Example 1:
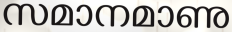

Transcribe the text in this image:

സമാനമാണു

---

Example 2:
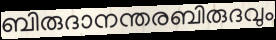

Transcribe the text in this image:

ബിരുദാനന്തരബിരുദവും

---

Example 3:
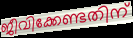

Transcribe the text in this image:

ജീവിക്കേണ്ടതിന്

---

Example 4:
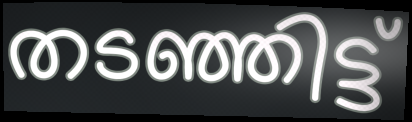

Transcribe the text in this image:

തടഞ്ഞിട്ട്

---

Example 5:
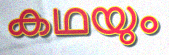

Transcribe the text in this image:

കഥയും